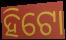
ହିଟୋ